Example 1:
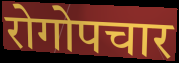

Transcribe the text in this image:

रोगोपचार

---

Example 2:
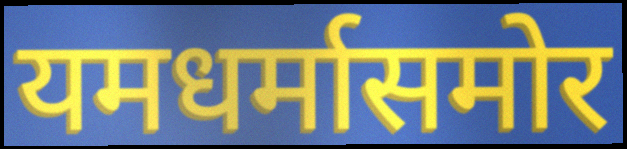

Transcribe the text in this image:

यमधर्मासमोर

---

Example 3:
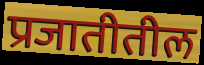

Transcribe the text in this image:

प्रजातीतील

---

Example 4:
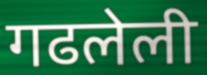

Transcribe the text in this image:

गढलेली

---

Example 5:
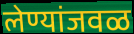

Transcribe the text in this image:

लेण्यांजवळ